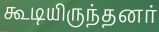
கூடியிருந்தனர்